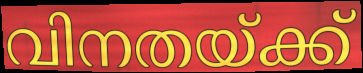
വിനതയ്ക്ക്